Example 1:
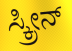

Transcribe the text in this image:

ಸ್ಕ್ರೀನ್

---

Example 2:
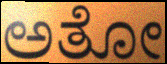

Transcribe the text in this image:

ಅತೋ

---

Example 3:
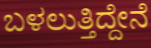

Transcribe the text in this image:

ಬಳಲುತ್ತಿದ್ದೇನೆ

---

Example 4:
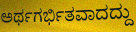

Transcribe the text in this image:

ಅರ್ಥಗರ್ಭಿತವಾದದ್ದು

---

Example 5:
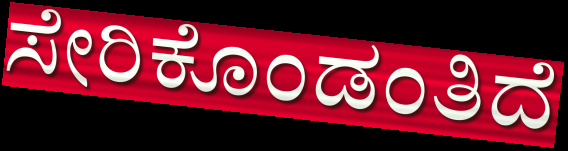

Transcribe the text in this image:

ಸೇರಿಕೊಂಡಂತಿದೆ